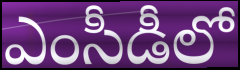
ఎంసీడీలో